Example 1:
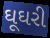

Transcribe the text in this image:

ઘૂઘરી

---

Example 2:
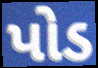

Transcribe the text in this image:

પોડ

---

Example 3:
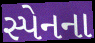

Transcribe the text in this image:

સ્પેનના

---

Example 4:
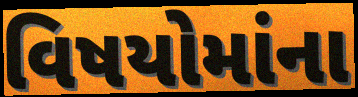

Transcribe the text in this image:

વિષયોમાંના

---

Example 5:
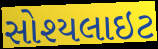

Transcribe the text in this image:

સોશ્યલાઇટ